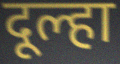
दूल्हा